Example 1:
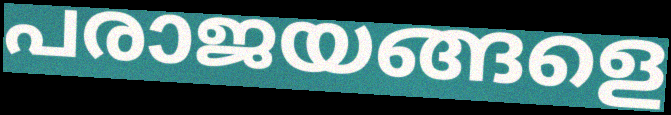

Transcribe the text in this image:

പരാജയങ്ങളെ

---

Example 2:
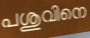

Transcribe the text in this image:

പശുവിനെ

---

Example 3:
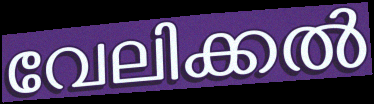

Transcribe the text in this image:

വേലിക്കൽ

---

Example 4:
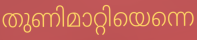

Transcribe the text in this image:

തുണിമാറ്റിയെന്നെ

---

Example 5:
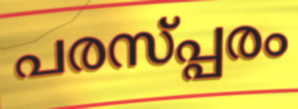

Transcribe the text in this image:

പരസ്പ്പരം